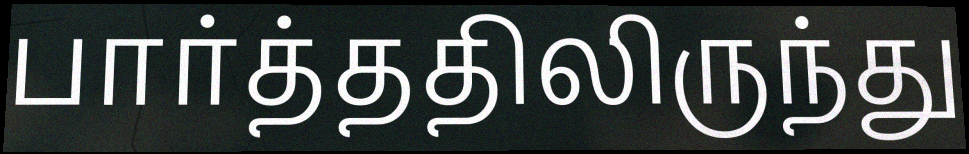
பார்த்ததிலிருந்து